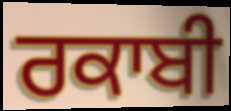
ਰਕਾਬੀ